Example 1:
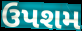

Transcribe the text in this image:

ઉપશમ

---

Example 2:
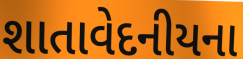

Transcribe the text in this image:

શાતાવેદનીયના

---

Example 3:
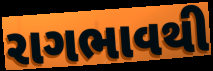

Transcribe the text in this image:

રાગભાવથી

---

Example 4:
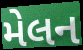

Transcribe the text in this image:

મેલન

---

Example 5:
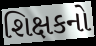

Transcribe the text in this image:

શિક્ષકનો